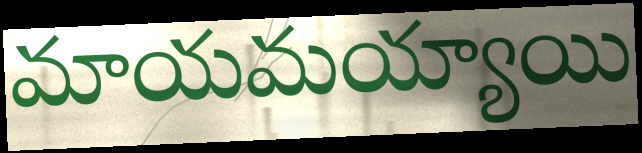
మాయమయ్యాయి